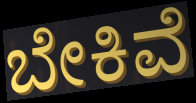
ಬೇಕಿವೆ